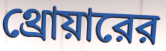
থ্রোয়ারের